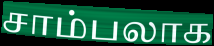
சாம்பலாக